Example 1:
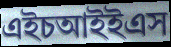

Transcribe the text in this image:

এইচআইইএস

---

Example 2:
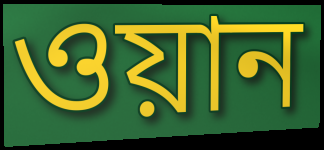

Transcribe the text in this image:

ওয়ান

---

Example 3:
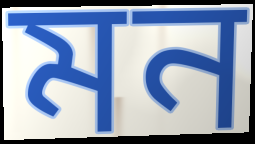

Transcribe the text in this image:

মন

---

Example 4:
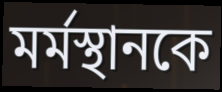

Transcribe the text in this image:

মর্মস্থানকে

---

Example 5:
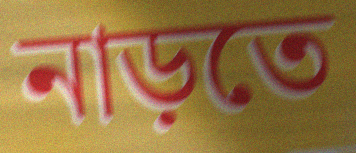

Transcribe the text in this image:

নাড়তে